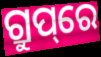
ଗ୍ରୁପ୍‌ରେ